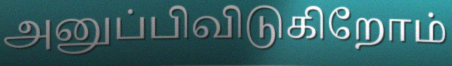
அனுப்பிவிடுகிறோம்